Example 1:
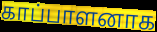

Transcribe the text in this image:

காப்பாளனாக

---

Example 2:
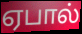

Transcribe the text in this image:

ஏபால்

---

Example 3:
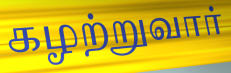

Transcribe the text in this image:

கழற்றுவார்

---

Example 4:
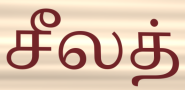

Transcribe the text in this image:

சீலத்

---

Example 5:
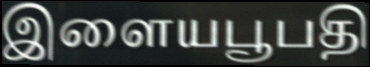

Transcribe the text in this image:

இளையபூபதி